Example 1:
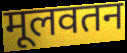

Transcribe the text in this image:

मूलवतन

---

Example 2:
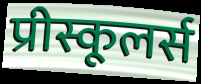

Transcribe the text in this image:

प्रीस्कूलर्स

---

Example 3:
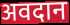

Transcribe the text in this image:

अवदान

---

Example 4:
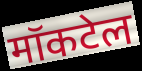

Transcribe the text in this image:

मॉकटेल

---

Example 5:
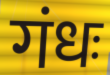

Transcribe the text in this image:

गंधः